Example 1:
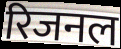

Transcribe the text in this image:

रिजनल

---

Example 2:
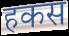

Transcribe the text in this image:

हकस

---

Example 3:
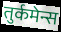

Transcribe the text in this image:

तुर्कमेन्स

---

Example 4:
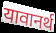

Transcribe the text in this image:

यावानर्थ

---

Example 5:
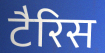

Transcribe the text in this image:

टैरिस